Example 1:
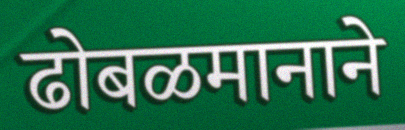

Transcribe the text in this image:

ढोबळमानाने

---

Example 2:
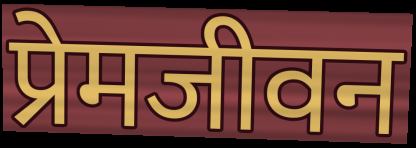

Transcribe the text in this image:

प्रेमजीवन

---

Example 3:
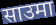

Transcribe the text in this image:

साउमा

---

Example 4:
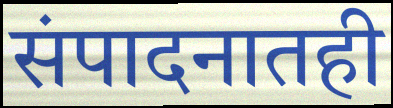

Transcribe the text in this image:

संपादनातही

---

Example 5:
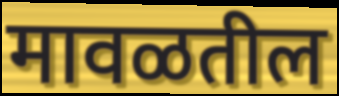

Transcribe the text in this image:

मावळतील